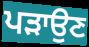
ਪੜਾਉਣ